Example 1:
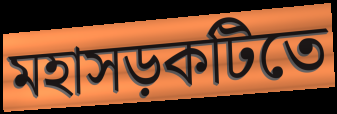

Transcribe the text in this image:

মহাসড়কটিতে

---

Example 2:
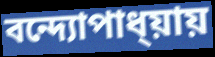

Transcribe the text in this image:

বন্দ্যোপাধ্য়ায়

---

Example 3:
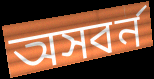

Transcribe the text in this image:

অসবর্ন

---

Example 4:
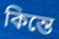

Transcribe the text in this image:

কিন্তে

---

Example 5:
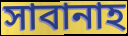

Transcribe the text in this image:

সাবানাহ